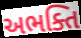
અભક્તિ